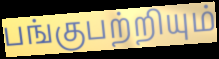
பங்குபற்றியும்